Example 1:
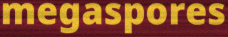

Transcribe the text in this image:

megaspores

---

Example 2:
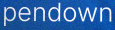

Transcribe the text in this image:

pendown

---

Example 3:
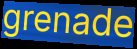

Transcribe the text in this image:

grenade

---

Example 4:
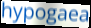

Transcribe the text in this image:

hypogaea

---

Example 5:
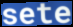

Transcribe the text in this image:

sete